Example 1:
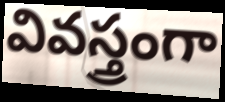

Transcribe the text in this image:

వివస్త్రంగా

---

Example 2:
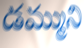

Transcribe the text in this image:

డమ్ముని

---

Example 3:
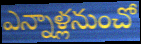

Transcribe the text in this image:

ఎన్నాళ్లనుంచో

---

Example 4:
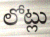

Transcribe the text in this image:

లోట్లు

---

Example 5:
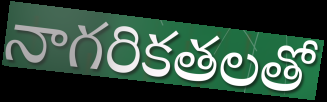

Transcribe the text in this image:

నాగరికతలతో